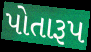
પોતારૂપ